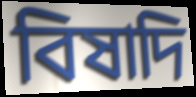
বিষাদি